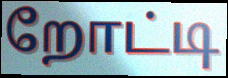
றோட்டி